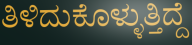
ತಿಳಿದುಕೊಳ್ಳುತ್ತಿದ್ದೆ